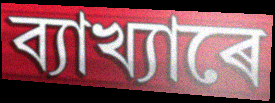
ব্যাখ্যাৰে